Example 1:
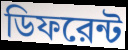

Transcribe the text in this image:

ডিফরেন্ট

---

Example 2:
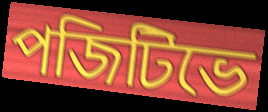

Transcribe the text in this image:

পজিটিভে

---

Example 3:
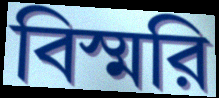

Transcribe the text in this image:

বিস্মরি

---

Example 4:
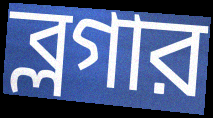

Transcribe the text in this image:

ব্লগার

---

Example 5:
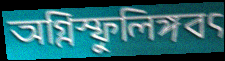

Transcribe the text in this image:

অগ্নিস্ফুলিঙ্গবৎ